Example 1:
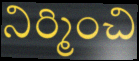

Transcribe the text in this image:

నిర్మించి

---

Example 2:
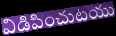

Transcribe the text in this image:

విడిపించుటయు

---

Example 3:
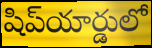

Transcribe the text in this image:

షిప్‌యార్డులో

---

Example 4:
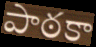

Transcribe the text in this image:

పాఠకా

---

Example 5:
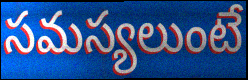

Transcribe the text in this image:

సమస్యలుంటే